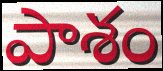
పాశం